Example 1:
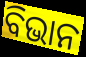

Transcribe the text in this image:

ବିଭାନ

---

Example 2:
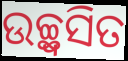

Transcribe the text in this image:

ଉଚ୍ଛ୍ୱସିତ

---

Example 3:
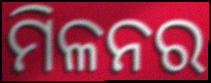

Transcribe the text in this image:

ମିଳନର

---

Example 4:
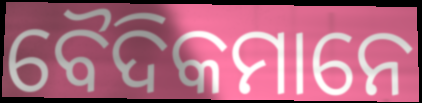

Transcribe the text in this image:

ବୈଦିକମାନେ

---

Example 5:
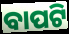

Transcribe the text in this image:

ବାପଟି